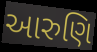
આરુણિ